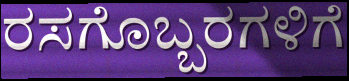
ರಸಗೊಬ್ಬರಗಳಿಗೆ